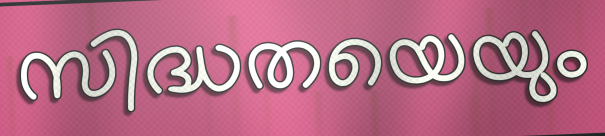
സിദ്ധതയെയും